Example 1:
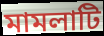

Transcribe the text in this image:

মামলাটি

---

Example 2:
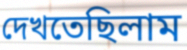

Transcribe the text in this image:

দেখতেছিলাম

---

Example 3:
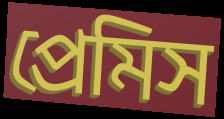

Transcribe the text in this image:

প্রেমিস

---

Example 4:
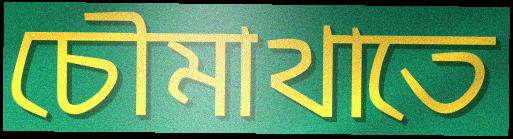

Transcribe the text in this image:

চৌমাথাতে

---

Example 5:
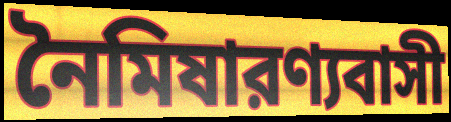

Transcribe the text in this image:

নৈমিষারণ্যবাসী